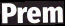
Prem